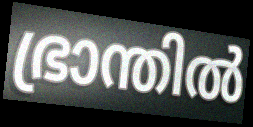
ഭ്രാന്തിൽ